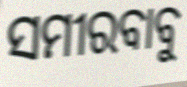
ସମୀରବାବୁ